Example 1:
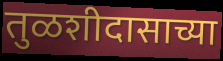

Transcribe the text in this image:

तुळशीदासाच्या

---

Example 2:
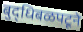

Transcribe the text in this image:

बुद्धिबळपटूने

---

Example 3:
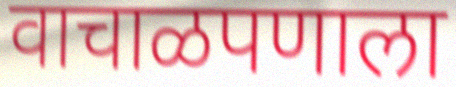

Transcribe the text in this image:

वाचाळपणाला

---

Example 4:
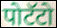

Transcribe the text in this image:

पोटॅटो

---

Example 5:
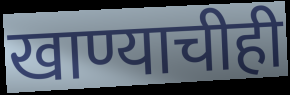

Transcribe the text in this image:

खाण्याचीही